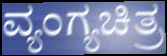
ವ್ಯಂಗ್ಯಚಿತ್ರ